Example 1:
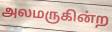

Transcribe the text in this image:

அலமருகின்ற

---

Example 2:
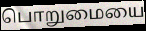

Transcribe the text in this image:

பொறுமையை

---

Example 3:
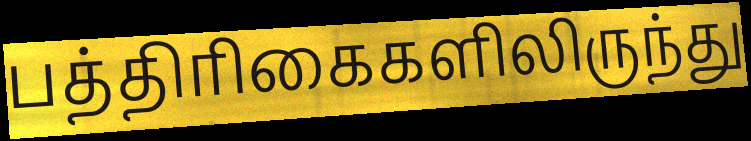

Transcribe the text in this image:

பத்திரிகைகளிலிருந்து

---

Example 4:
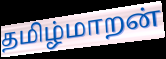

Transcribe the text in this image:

தமிழ்மாறன்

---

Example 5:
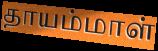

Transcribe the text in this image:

தாயம்மாள்